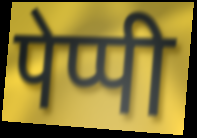
पेप्पी